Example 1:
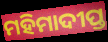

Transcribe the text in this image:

ମହିମାଦୀପ୍ତ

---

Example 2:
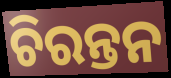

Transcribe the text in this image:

ଚିରନ୍ତନ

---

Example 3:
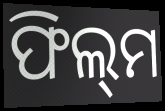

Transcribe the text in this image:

ଫିଲ୍‌ମ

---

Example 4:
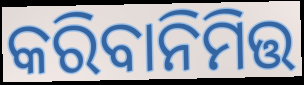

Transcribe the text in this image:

କରିବାନିମିତ୍ତ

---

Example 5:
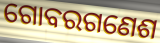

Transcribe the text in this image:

ଗୋବରଗଣେଶ